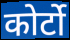
कोर्टो